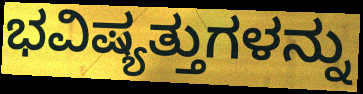
ಭವಿಷ್ಯತ್ತುಗಳನ್ನು